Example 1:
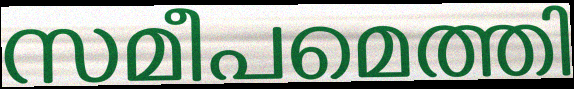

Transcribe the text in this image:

സമീപമെത്തി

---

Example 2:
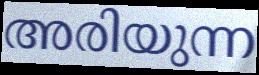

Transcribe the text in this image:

അരിയുന്ന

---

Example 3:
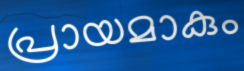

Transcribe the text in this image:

പ്രായമാകും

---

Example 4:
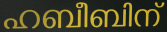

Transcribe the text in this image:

ഹബീബിന്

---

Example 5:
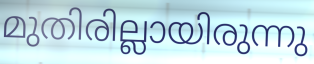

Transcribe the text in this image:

മുതിരില്ലായിരുന്നു